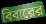
বিবারের